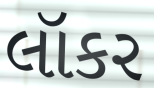
લૉકર